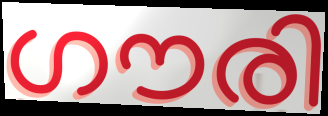
ഗൗരി